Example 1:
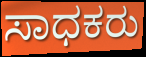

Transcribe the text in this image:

ಸಾಧಕರು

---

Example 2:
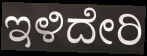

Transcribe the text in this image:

ಇಳಿದೇರಿ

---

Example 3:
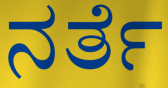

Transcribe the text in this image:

ನರ್ತೆ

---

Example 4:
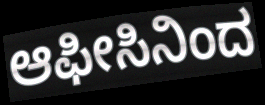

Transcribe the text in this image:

ಆಫೀಸಿನಿಂದ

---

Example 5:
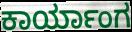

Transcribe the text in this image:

ಕಾರ್ಯಾಂಗ